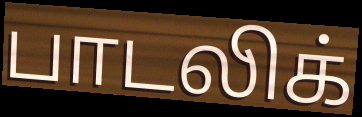
பாடலிக்